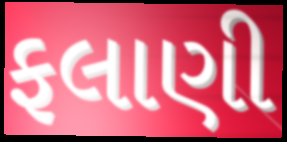
ફલાણી